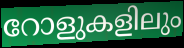
റോളുകളിലും